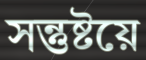
সন্তুষ্টয়ে